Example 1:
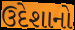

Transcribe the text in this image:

ઉદેશાનો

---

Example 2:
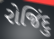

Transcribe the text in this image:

રોજિંદુ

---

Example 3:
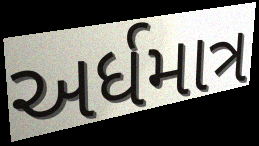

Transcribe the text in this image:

અર્ધમાત્ર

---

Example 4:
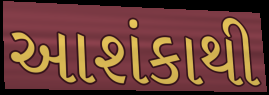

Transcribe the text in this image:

આશંકાથી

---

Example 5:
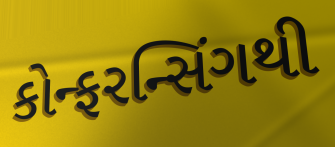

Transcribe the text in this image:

કોન્ફરન્સિંગથી